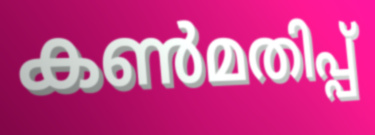
കൺമതിപ്പ്